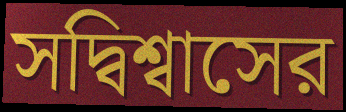
সদ্বিশ্বাসের